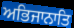
ਅਭਿਜਾਨਾਤਿ